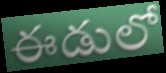
ఈడులో